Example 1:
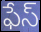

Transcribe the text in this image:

ఫేస్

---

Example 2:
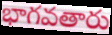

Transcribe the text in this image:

భాగవతారు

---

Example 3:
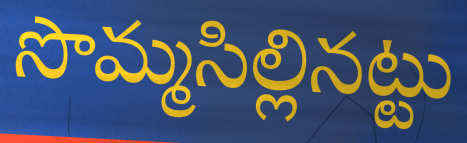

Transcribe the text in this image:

సొమ్మసిల్లినట్టు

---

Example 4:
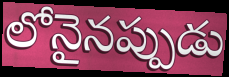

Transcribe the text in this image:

లోనైనప్పుడు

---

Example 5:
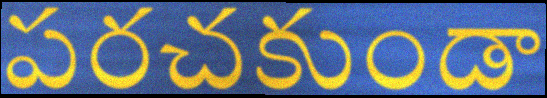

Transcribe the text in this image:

పరచకుండా